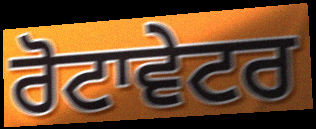
ਰੋਟਾਵੇਟਰ